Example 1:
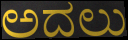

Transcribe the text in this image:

ಅದಲು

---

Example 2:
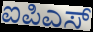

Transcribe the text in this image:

ಐಪಿಎಸ್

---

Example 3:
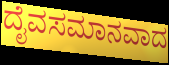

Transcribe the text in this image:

ದೈವಸಮಾನವಾದ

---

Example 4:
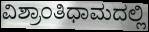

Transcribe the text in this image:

ವಿಶ್ರಾಂತಿಧಾಮದಲ್ಲಿ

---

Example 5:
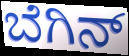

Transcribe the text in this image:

ಬೆಗಿನ್